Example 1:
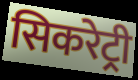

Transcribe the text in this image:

सिकरेट्री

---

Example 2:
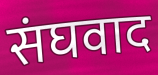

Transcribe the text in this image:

संघवाद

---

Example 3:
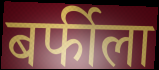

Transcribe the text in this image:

बर्फीला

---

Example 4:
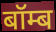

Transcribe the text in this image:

बॉम्ब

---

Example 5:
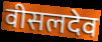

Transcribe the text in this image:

वीसलदेव